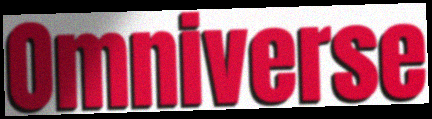
Omniverse